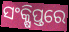
ସଂକ୍ଷିପ୍ତରେ